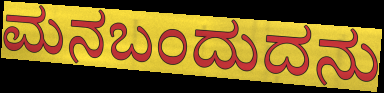
ಮನಬಂದುದನು